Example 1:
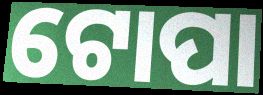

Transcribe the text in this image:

ଟୋପା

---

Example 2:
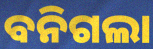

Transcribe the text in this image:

ବନିଗଲା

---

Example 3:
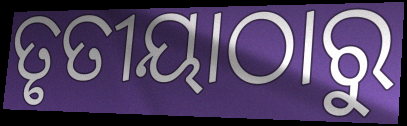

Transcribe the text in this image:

ତୃତୀୟାଠାରୁ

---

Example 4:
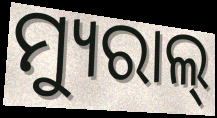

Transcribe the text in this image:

ମ୍ୟୁରାଲ୍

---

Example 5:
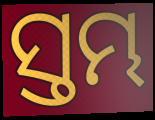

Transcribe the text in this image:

ସ୍ତମ୍ଭ